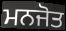
ਮਨਜੋਤ